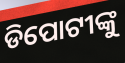
ଡିପୋଟୀଙ୍କୁ